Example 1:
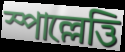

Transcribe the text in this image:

স্পাল্লেত্তি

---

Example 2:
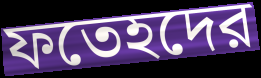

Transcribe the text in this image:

ফতেহদের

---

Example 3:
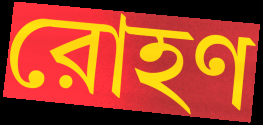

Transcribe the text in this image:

রোহণ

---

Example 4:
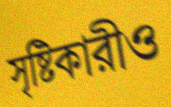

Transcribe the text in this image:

সৃষ্টিকারীও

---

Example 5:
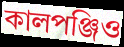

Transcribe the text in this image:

কালপঞ্জিও